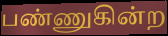
பண்ணுகின்ற